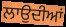
ਲਾਉਦੀਆਂ